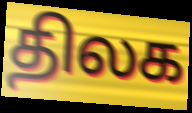
திலக